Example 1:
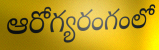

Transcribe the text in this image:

ఆరోగ్యరంగంలో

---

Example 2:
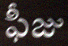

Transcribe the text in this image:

ఫీజు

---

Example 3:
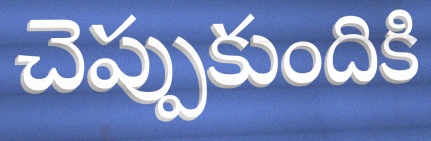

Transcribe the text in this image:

చెప్పుకుందికి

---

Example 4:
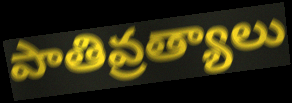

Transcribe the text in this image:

పాతివ్రత్యాలు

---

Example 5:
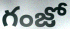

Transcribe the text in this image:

గంజో